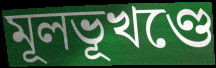
মূলভূখণ্ডে